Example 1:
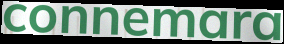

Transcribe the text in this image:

connemara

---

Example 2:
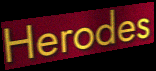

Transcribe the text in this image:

Herodes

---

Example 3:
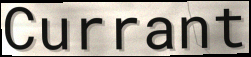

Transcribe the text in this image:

Currant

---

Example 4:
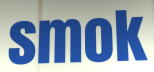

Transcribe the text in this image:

smok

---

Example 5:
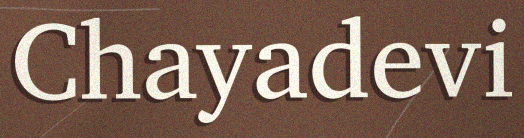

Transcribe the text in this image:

Chayadevi